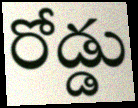
రోడ్డు